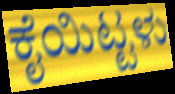
ಕೈಯಿಟ್ಟಳು